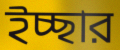
ইচ্ছার